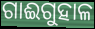
ଗାଈଗୁହାଳ